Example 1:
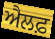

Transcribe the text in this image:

ਐਲਫ਼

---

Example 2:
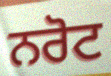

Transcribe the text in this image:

ਨਰੋਟ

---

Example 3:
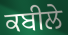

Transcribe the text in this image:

ਕਬੀਲੇ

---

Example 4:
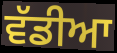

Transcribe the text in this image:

ਵੱਡੀਆ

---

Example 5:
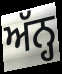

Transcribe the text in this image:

ਅੱਨ੍ਹ